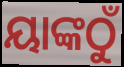
ୟାଙ୍କଠୁଁ